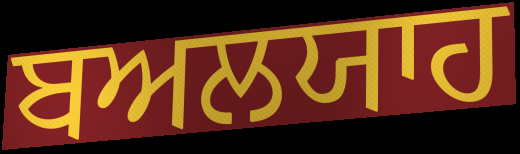
ਬਅਲਯਾਹ